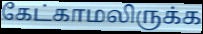
கேட்காமலிருக்க